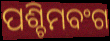
ପଶ୍ଚିମବଂଗ